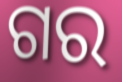
ଗର